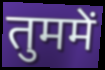
तुममें